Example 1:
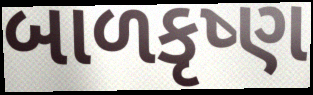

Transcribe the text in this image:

બાળકૃષ્ણ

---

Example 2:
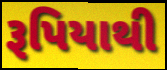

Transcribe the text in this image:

રૂપિયાથી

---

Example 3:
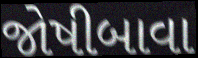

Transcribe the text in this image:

જોષીબાવા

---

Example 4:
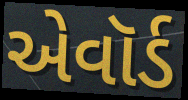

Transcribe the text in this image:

એવૉર્ડ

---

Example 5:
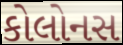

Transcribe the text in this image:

કોલોનસ